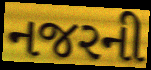
નજરની